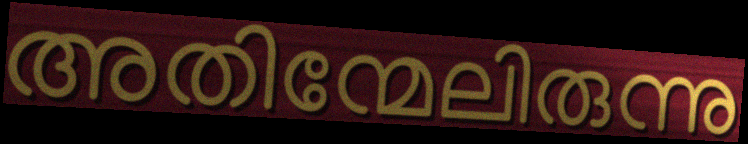
അതിന്മേലിരുന്നു